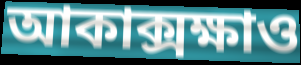
আকাক্সক্ষাও